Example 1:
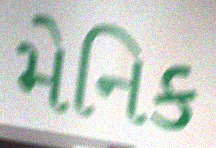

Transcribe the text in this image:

મેનિક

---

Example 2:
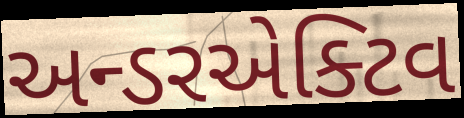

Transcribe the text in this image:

અન્ડરએક્ટિવ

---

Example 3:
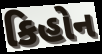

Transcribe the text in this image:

કિહોન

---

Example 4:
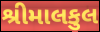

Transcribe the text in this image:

શ્રીમાલકુલ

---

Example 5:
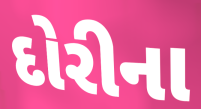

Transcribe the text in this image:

દોરીના